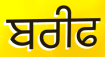
ਬਰੀਫ